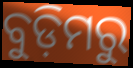
ବୁଡ଼ିମରୁ